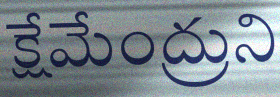
క్షేమేంద్రుని